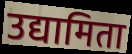
उद्यामिता